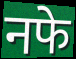
नफे